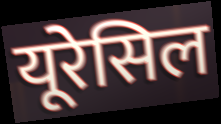
यूरेसिल